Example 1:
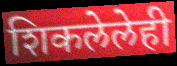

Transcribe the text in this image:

शिकलेलेही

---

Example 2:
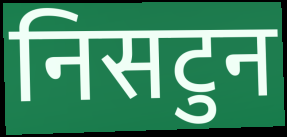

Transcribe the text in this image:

निसटुन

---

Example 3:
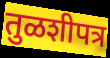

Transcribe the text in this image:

तुळशीपत्र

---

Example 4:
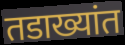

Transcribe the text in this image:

तडाख्यांत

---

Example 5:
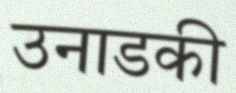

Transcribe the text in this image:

उनाडकी